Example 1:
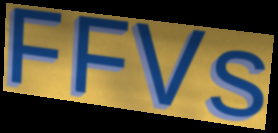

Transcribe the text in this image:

FFVs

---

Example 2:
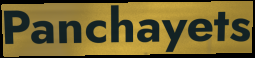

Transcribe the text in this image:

Panchayets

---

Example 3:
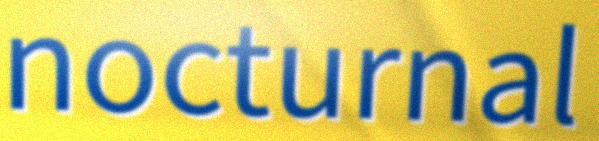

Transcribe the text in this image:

nocturnal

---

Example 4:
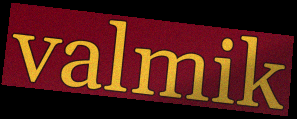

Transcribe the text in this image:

valmik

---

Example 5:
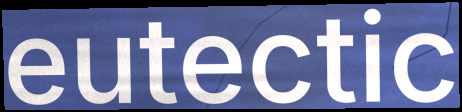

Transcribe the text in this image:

eutectic